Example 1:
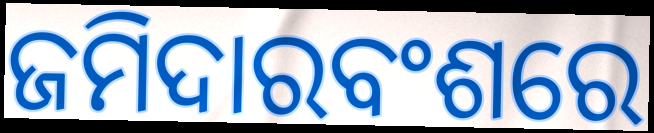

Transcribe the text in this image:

ଜମିଦାରବଂଶରେ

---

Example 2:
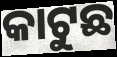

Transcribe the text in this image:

କାଟୁଛ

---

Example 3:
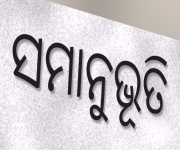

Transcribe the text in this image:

ସମାନୁଭୂତି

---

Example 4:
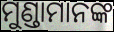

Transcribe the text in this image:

ମୁଣ୍ଡାମାନଙ୍କ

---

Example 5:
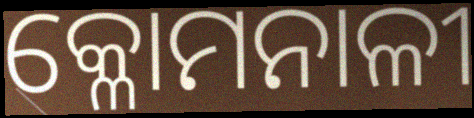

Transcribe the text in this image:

କ୍ଳୋମନାଳୀ